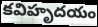
కవిహృదయం